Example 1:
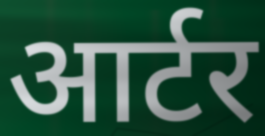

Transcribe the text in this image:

आर्टर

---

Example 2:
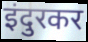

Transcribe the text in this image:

इंदुरकर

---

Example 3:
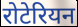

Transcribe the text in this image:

रोटेरियन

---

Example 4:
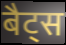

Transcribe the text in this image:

बैट्स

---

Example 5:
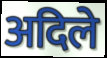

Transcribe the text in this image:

अदिले